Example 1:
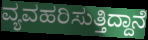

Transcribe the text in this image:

ವ್ಯವಹರಿಸುತ್ತಿದ್ದಾನೆ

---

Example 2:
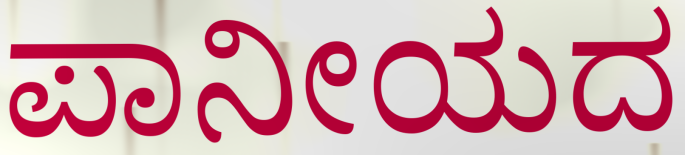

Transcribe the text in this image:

ಪಾನೀಯದ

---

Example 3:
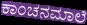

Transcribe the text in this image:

ಕಾಂಚನಮಾಲೆ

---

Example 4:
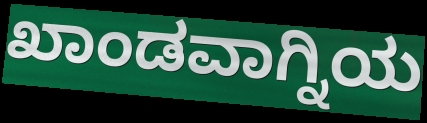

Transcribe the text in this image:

ಖಾಂಡವಾಗ್ನಿಯ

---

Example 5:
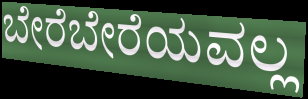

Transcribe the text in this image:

ಬೇರೆಬೇರೆಯವಲ್ಲ